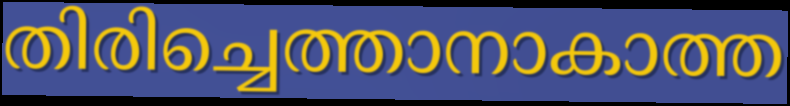
തിരിച്ചെത്താനാകാത്ത